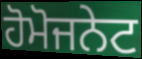
ਹੋਮੋਜਨੇਟ